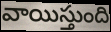
వాయిస్తుంది